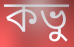
কভু